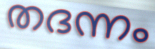
തദന്നം